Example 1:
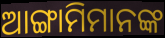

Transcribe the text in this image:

ଆଙ୍ଗାମିମାନଙ୍କ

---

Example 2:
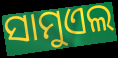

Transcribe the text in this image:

ସାମୁଏଲ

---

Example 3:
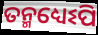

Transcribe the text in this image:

ତନ୍ମଧ୍ୟେଽପି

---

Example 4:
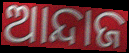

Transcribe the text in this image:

ଆନ୍ଦାଜ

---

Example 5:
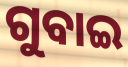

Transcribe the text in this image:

ଗୁବାଇ